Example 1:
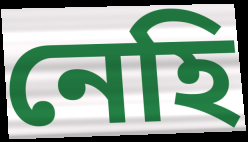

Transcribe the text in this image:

নেহি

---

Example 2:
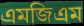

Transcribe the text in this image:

এমজিএম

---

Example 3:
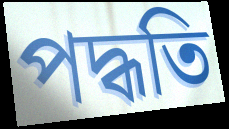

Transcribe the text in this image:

পদ্ধতি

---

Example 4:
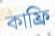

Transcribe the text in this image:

কাফ্রি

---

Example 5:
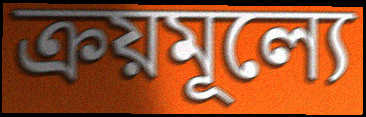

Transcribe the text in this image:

ক্রয়মূল্যে